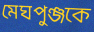
মেঘপুঞ্জকে